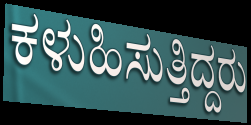
ಕಳುಹಿಸುತ್ತಿದ್ದರು